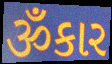
ૐકાર